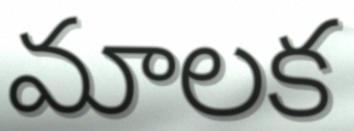
మాలక